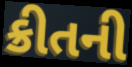
ક્રીતની